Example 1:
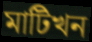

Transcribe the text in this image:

মাটিখন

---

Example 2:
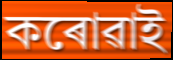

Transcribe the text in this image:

কৰোৱাই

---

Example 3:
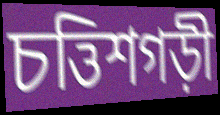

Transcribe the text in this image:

চত্তিশগড়ী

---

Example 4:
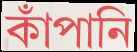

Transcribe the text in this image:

কাঁপানি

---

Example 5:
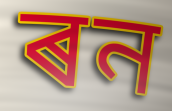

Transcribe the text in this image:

ৰন